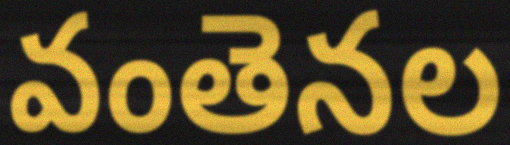
వంతెనల